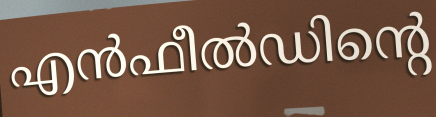
എൻഫീൽഡിന്റെ